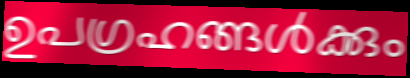
ഉപഗ്രഹങ്ങൾക്കും